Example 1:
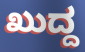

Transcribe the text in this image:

ಖುದ್ದ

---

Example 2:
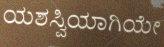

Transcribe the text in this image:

ಯಶಸ್ವಿಯಾಗಿಯೇ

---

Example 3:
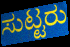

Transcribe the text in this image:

ಸುಟ್ಟರು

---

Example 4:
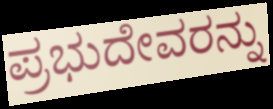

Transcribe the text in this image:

ಪ್ರಭುದೇವರನ್ನು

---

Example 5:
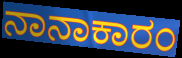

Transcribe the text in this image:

ನಾನಾಕಾರಂ